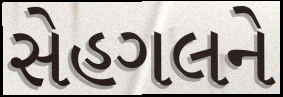
સેહગલને